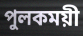
পুলকময়ী